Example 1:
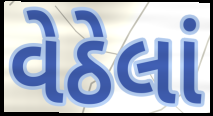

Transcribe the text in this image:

વેઠેલાં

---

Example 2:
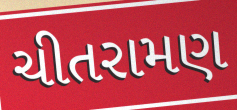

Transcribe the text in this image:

ચીતરામણ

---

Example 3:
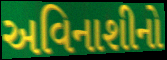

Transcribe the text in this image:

અવિનાશીનો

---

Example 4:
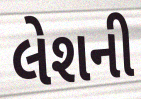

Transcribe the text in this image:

લેશની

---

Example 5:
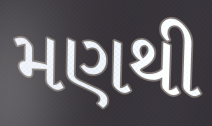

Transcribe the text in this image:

મણથી